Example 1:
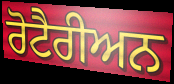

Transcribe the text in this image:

ਰੋਟੈਰੀਅਨ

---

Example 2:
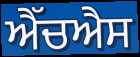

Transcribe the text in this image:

ਐੱਚਐਸ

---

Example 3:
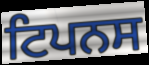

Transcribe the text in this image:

ਟਿਪਨਸ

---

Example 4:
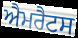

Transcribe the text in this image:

ਐਮਰੈਟਸ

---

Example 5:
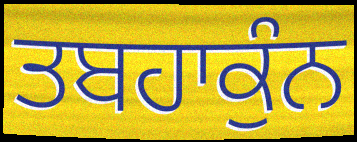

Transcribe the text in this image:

ਤਬਹਾਕੁੰਨ